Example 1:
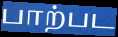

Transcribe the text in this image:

பாற்பட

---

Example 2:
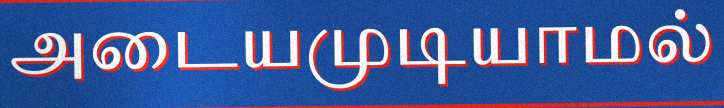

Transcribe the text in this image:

அடையமுடியாமல்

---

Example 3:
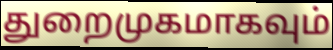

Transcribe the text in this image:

துறைமுகமாகவும்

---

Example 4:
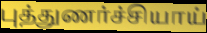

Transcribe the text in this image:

புத்துணர்ச்சியாய்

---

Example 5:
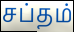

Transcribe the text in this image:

சப்தம்